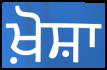
ਖ਼ੋਸ਼ਾ